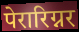
पेरारिग्नर